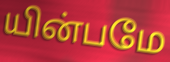
யின்பமே